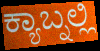
ಕ್ಯಾಬ್ನಲ್ಲಿ